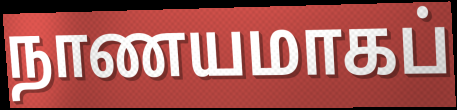
நாணயமாகப்